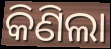
କିଣିଲା